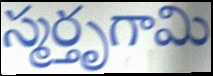
స్మర్తృగామి